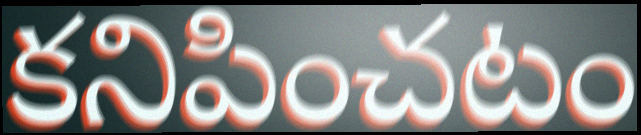
కనిపించటం